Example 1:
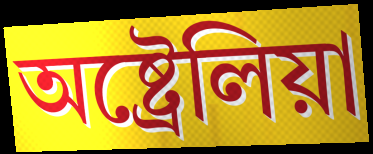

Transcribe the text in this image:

অষ্ট্ৰেলিয়া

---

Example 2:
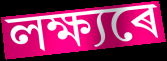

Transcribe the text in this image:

লক্ষ্যৰে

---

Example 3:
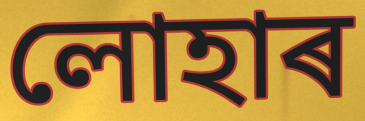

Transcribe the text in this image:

লোহাৰ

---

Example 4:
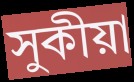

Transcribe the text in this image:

সুকীয়া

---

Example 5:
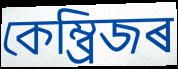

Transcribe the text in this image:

কেম্ব্ৰিজৰ